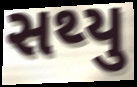
સથ્યુ